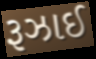
રૂઝાઈ